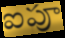
ఐపూ